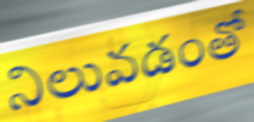
నిలువడంతో